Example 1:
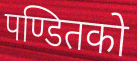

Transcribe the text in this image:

पण्डितको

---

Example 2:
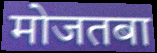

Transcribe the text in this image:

मोजतबा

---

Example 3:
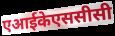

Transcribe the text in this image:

एआईकेएससीसी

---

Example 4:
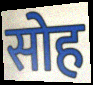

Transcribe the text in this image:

सोह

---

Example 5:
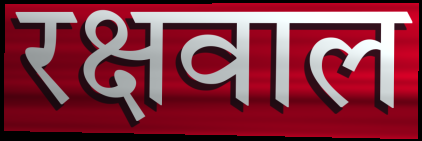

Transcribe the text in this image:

रक्षवाल